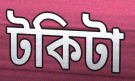
টকিটা